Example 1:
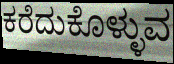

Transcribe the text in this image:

ಕರೆದುಕೊಳ್ಳುವ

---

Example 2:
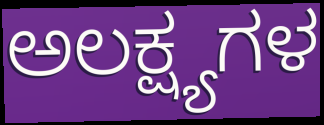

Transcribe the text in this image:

ಅಲಕ್ಷ್ಯಗಳ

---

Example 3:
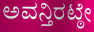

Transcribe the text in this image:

ಅವನ್ತಿರಟ್ಠೇ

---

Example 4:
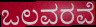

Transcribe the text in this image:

ಒಲವರವೆ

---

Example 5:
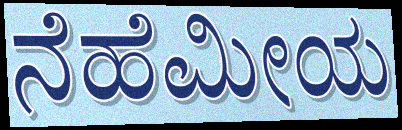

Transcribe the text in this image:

ನೆಹೆಮೀಯ